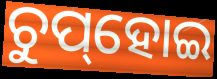
ଚୁପ୍‌ହୋଇ